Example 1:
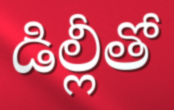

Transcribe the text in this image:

డిల్లీతో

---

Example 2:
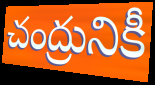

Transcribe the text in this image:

చంద్రునికీ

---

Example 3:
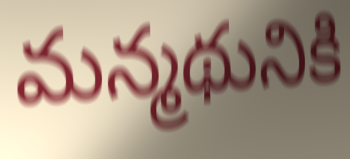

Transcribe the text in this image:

మన్మథునికి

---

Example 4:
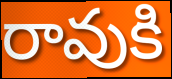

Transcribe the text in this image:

రావుకి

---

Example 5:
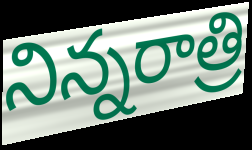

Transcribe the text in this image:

నిన్నరాత్రి